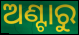
ଅଣ୍ଟାରୁ